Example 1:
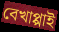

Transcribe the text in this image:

বেখাপ্পাই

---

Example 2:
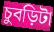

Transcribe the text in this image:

চুবড়িটা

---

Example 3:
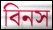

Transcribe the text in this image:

বিনস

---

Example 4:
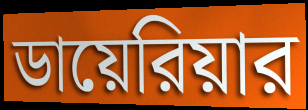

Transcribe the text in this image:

ডায়েরিয়ার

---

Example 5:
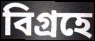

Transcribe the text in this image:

বিগ্রহে